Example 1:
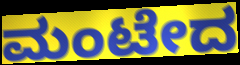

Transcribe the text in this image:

ಮಂಟೇದ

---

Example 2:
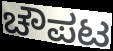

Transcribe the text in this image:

ಚೌಪಟ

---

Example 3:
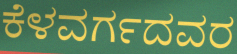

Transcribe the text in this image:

ಕೆಳವರ್ಗದವರ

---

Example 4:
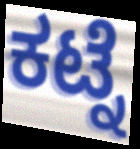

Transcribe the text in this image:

ಕಟ್ನೆ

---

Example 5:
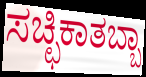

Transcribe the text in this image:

ಸಚ್ಛಿಕಾತಬ್ಬಾ